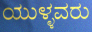
ಯುಳ್ಳವರು